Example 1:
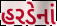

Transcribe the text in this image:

હરડેનાં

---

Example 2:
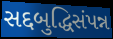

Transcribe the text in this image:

સદ્દબુદ્ધિસંપન્ન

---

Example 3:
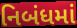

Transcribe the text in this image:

નિબંધમાં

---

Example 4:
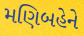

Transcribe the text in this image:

મણિબહેને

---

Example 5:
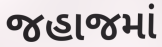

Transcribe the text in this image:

જહાજમાં